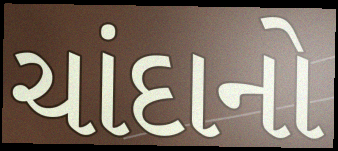
ચાંદાનો